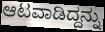
ಆಟವಾಡಿದ್ದನ್ನು